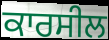
ਕਾਰਸੀਲ